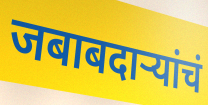
जबाबदार्‍यांचं